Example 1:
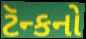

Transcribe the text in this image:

ટૅન્કનો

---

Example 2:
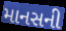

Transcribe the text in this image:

માનસની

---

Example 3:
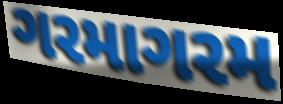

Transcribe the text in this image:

ગરમાગરમ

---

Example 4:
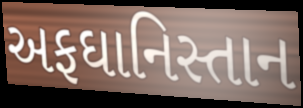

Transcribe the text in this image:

અફઘાનિસ્તાન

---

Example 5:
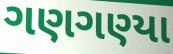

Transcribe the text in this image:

ગણગણ્યા